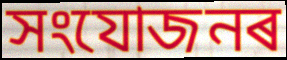
সংযোজনৰ